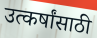
उत्कर्षांसाठी